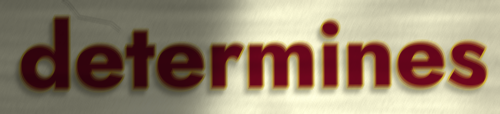
determines